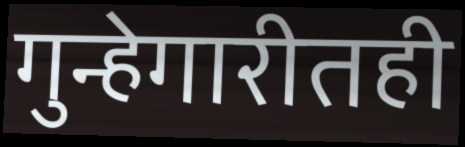
गुन्हेगारीतही